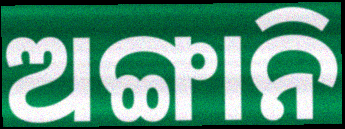
ଅଙ୍ଗାନି